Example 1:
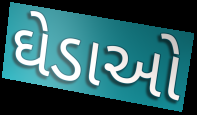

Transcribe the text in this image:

ઘેડાઓ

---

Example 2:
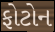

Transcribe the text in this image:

ફોટોન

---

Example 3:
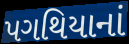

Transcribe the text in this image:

પગથિયાનાં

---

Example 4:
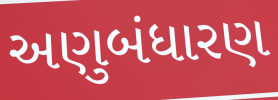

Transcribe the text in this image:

અણુબંધારણ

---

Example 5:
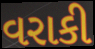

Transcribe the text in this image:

વરાકી